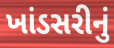
ખાંડસરીનું